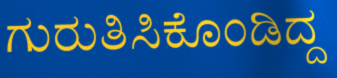
ಗುರುತಿಸಿಕೊಂಡಿದ್ದ